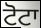
ਟੋਟਾ